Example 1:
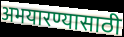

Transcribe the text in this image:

अभयारण्यासाठी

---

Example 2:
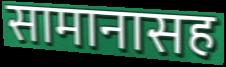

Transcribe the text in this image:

सामानासह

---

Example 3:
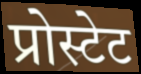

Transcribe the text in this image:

प्रोस्टेट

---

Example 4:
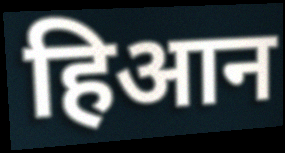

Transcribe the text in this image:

हिआन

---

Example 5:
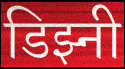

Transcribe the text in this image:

डिझ्नी